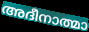
അദീനാത്മാ